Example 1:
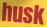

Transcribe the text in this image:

husk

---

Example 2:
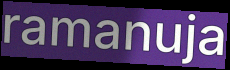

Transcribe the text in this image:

ramanuja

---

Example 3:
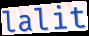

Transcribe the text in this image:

lalit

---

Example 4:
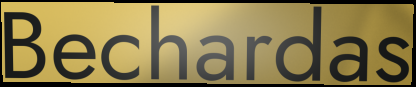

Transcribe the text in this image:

Bechardas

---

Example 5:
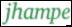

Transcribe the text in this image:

jhampe